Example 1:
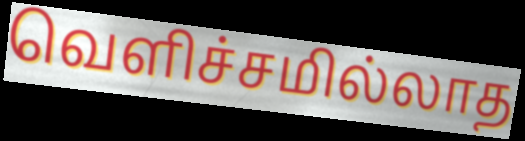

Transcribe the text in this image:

வெளிச்சமில்லாத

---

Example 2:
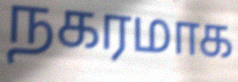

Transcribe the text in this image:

நகரமாக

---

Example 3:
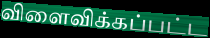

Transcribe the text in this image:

விளைவிக்கப்பட்ட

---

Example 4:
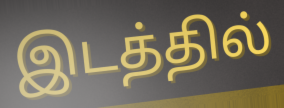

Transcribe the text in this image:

இடத்தில்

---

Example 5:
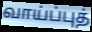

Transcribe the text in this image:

வாய்ப்புத்